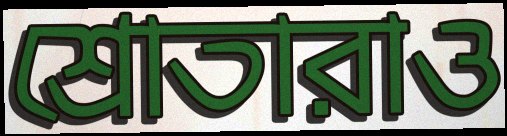
শ্রোতারাও